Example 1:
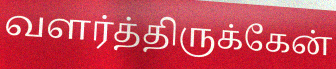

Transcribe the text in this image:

வளர்த்திருக்கேன்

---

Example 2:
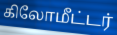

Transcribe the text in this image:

கிலோமீட்டர்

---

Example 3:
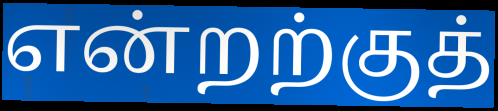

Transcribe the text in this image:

என்றற்குத்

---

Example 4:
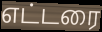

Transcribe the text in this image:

எட்டரை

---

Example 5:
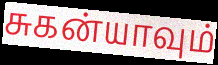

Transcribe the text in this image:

சுகன்யாவும்